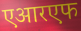
एआरएफ